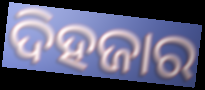
ଦିହଜାର